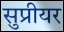
सुप्रीयर